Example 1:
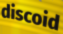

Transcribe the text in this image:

discoid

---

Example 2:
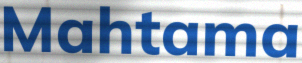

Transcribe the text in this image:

Mahtama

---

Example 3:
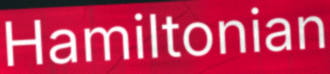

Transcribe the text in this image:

Hamiltonian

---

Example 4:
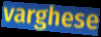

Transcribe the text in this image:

varghese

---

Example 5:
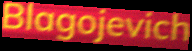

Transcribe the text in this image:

Blagojevich